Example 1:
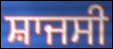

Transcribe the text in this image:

ਸ਼ਾਜਸੀ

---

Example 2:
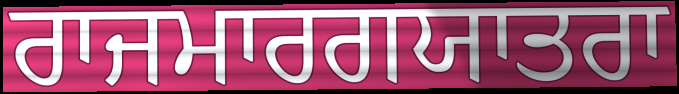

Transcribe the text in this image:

ਰਾਜਮਾਰਗਯਾਤਰਾ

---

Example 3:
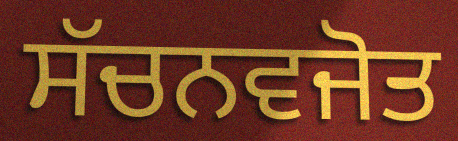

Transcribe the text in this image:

ਸੱਚਨਵਜੋਤ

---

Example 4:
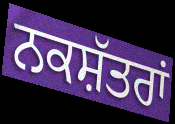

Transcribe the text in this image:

ਨਕਸ਼ੱਤਰਾਂ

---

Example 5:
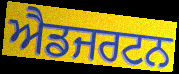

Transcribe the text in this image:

ਐਡਜਰਟਨ